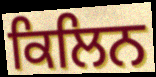
ਕਿਲਿਨ